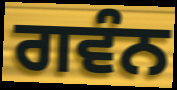
ਗਵੰਨ